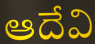
ఆదేవి